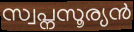
സ്വപ്നസൂര്യൻ